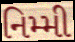
નિમ્મી